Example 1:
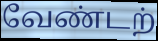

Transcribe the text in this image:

வேண்டற்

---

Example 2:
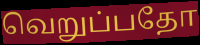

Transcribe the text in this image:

வெறுப்பதோ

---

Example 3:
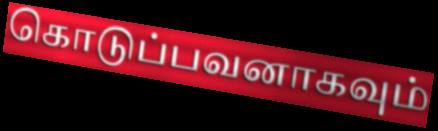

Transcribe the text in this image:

கொடுப்பவனாகவும்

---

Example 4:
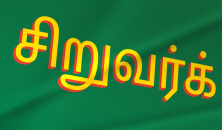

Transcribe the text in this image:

சிறுவர்க்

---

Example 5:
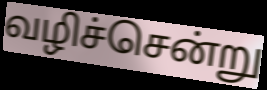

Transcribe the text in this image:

வழிச்சென்று